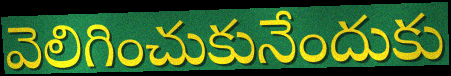
వెలిగించుకునేందుకు